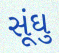
સૂંઘુ